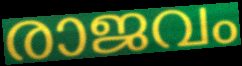
രാജവം